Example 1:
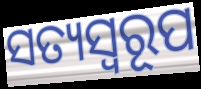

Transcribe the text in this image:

ସତ୍ୟସ୍ୱରୂପ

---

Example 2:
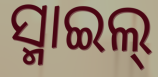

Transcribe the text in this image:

ସ୍ମାଇଲ୍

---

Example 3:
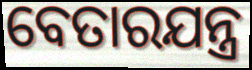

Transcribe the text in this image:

ବେତାରଯନ୍ତ୍ର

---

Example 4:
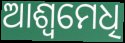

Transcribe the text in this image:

ଆଶ୍ୱମେଧି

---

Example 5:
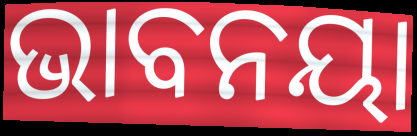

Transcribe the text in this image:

ଭାବନୟା